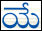
యే